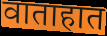
वाताहात